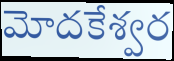
మోదకేశ్వర